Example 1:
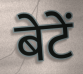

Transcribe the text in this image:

बेटें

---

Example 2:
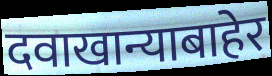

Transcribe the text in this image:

दवाखान्याबाहेर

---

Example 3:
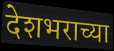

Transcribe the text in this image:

देशभराच्या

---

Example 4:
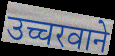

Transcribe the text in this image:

उच्चरवाने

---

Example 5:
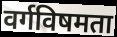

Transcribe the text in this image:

वर्गविषमता